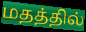
மதத்தில்